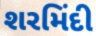
શરમિંદી